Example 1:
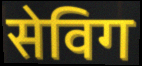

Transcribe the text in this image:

सेविग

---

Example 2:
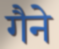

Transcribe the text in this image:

गैने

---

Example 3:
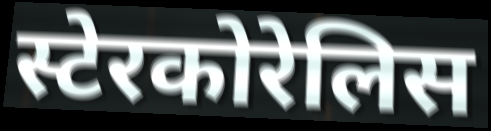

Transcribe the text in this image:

स्टेरकोरेलिस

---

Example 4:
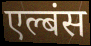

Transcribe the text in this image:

एल्बंस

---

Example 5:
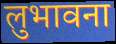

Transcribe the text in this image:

लुभावना